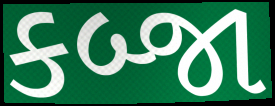
કબ્જા